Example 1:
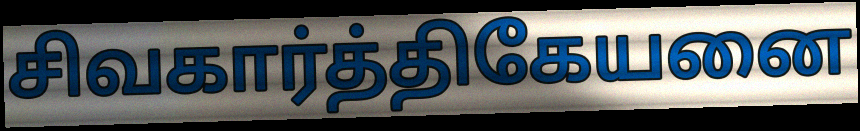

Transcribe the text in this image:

சிவகார்த்திகேயனை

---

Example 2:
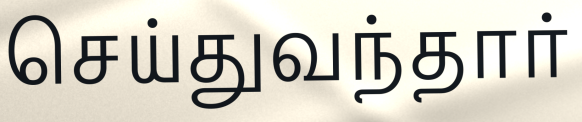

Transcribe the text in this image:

செய்துவந்தார்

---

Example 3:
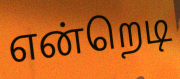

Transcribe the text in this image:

என்றெடி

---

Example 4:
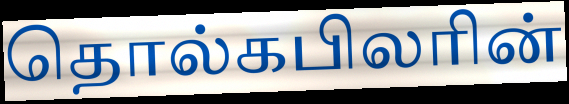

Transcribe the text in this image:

தொல்கபிலரின்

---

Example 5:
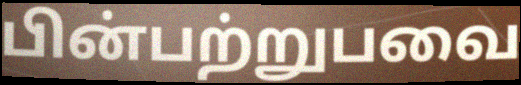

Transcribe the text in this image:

பின்பற்றுபவை